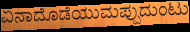
ಏನಾದೊಡೆಯುಮಪ್ಪುದುಂಟು